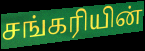
சங்கரியின்